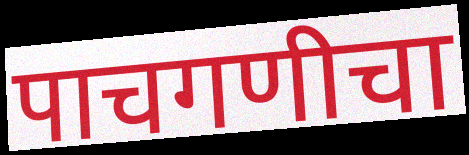
पाचगणीचा